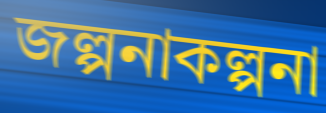
জল্পনাকল্পনা